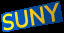
SUNY